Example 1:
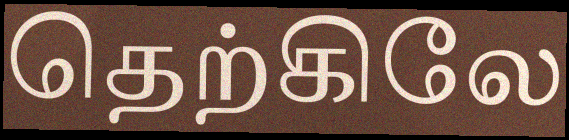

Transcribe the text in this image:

தெற்கிலே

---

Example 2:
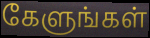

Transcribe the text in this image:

கேளுங்கள்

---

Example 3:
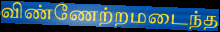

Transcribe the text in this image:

விண்ணேற்றமடைந்த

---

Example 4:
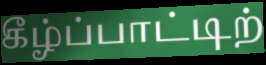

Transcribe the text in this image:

கீழ்ப்பாட்டிற்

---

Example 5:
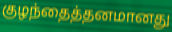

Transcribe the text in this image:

குழந்தைத்தனமானது